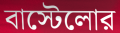
বাস্টেলোর